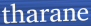
tharane